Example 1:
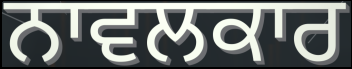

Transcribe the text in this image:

ਨਾਵਲਕਾਰ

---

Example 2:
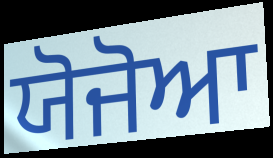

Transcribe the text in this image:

ਯੋਜੋਆ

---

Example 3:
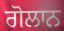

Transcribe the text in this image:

ਗੋਲਾਨ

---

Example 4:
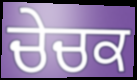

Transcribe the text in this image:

ਚੇਚਕ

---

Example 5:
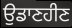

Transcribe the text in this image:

ਉਡਾਣਹੀਣ